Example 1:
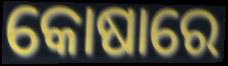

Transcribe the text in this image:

କୋଷାରେ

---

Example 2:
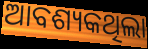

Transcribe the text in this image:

ଆବଶ୍ୟକଥିଲା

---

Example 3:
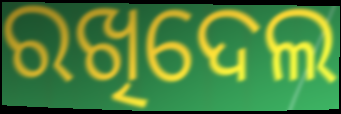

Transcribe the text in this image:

ରଖିଦେଲ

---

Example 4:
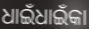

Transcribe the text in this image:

ଧାଇଁଧାଇଁକା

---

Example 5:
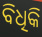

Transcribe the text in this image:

ବିଧିକି